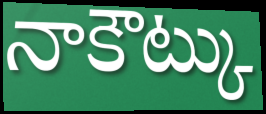
నాకౌట్కు